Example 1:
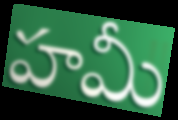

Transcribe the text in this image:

హమీ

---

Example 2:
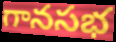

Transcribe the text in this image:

గానసభ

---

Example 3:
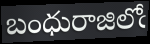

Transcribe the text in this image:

బంధురాజిలోఁ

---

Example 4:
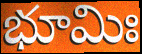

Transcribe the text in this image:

భూమిః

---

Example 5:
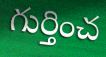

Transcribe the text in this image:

గుర్తించ